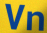
Vn